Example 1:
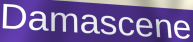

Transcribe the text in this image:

Damascene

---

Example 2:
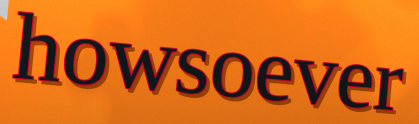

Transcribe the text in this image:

howsoever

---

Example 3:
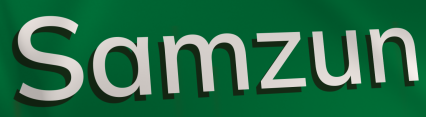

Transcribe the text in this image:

Samzun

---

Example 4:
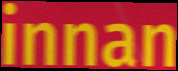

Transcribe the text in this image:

innan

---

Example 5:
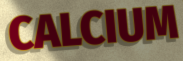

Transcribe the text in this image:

CALCIUM